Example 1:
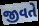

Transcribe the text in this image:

જીવતે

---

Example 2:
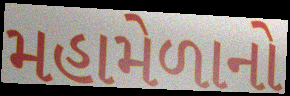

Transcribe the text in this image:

મહામેળાનો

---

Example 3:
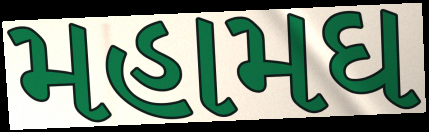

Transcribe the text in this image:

મહામઘ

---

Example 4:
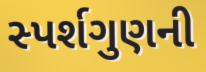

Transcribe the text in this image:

સ્પર્શગુણની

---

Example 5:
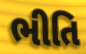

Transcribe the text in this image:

ભીતિ